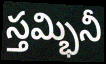
స్తమ్భినీ